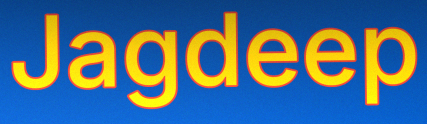
Jagdeep